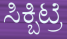
ಸಿಕ್ಬಿಟ್ರೆ